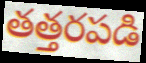
తత్తరపడి